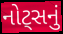
નોટ્સનું